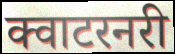
क्वाटरनरी